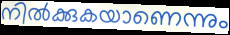
നിൽക്കുകയാണെന്നും